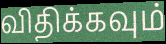
விதிக்கவும்